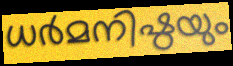
ധർമനിഷ്ഠയും